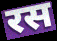
रस